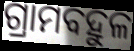
ଗ୍ରାମବହୁଳ